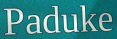
Paduke